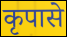
कृपासे